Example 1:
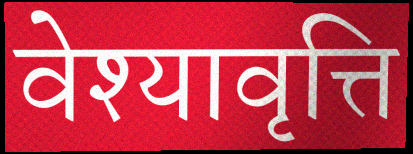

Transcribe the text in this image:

वेश्यावृत्ति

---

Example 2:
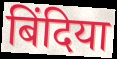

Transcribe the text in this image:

बिंदिया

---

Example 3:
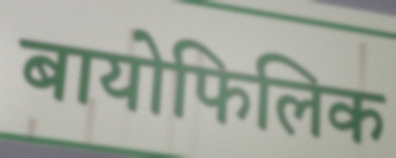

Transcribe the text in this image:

बायोफिलिक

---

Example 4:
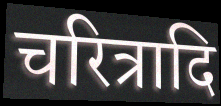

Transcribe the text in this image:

चरित्रादि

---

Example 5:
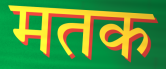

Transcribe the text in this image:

मतक